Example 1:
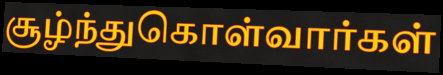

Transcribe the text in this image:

சூழ்ந்துகொள்வார்கள்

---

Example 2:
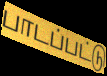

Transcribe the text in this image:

பாடப்பட்டு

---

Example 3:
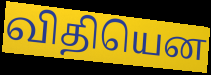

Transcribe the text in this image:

விதியென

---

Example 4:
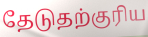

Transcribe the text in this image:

தேடுதற்குரிய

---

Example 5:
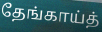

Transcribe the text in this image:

தேங்காய்த்